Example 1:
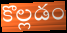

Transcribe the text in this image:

కొల్లడం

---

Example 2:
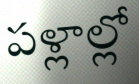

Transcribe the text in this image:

పళ్లాల్లో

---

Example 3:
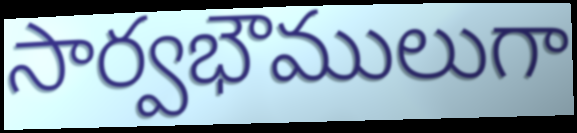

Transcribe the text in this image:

సార్వభౌములుగా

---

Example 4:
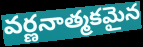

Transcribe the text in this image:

వర్ణనాత్మకమైన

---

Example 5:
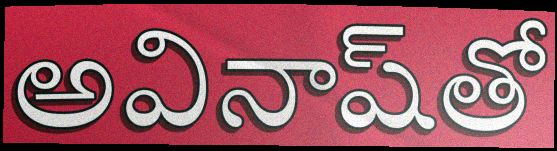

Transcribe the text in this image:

అవినాష్‌తో